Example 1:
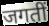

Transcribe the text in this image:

जगतीं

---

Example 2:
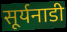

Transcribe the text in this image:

सूर्यनाडी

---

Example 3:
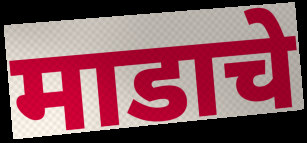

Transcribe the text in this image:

माडाचे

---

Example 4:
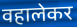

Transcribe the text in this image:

वहालेकर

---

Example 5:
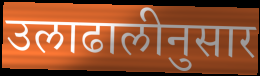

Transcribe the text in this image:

उलाढालीनुसार